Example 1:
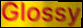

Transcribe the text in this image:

Glossy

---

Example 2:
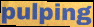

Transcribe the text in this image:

pulping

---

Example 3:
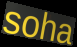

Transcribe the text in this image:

soha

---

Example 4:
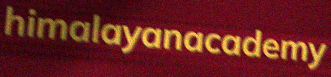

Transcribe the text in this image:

himalayanacademy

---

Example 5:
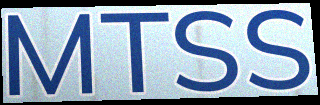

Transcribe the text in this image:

MTSS